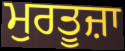
ਮੁਰਤੂਜ਼ਾ